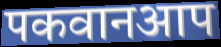
पकवानआप